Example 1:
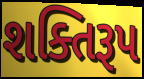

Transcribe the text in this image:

શક્તિરૂપ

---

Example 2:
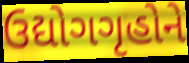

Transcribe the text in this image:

ઉદ્યોગગૃહોને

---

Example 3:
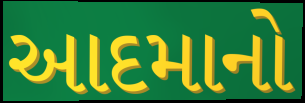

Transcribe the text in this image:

આદમાનો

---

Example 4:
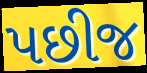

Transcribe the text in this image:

પછીજ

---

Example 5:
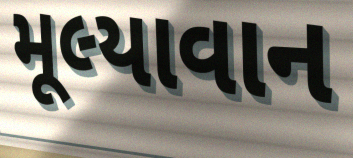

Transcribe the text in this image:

મૂલ્યાવાન